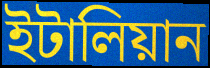
ইটালিয়ান